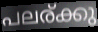
പലര്ക്കു